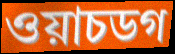
ওয়াচডগ